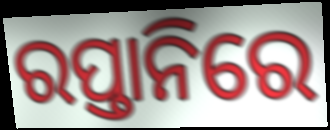
ରପ୍ତାନିରେ